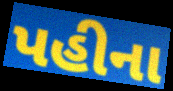
પહીના